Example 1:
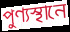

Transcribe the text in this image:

পুণ্যস্থানে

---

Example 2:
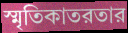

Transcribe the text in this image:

স্মৃতিকাতরতার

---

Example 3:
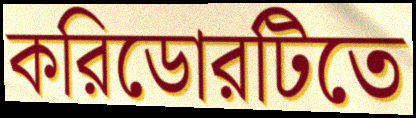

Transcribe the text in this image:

করিডোরটিতে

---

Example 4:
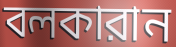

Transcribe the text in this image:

বলকারান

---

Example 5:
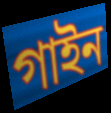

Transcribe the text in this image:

গাইন